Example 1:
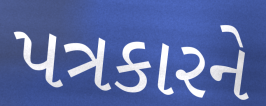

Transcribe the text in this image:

પત્રકારને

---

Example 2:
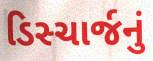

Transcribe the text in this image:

ડિસ્ચાર્જનું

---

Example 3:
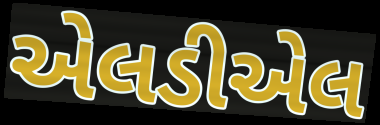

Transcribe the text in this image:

એલડીએલ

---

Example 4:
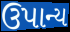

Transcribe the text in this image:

ઉપાન્ય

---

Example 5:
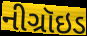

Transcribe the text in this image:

નીગ્રૉઇડ